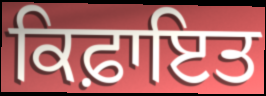
ਕਿਫ਼ਾਇਤ